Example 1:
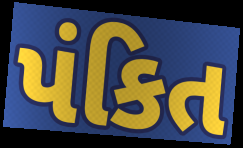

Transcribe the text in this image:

પંકિત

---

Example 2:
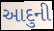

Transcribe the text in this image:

આદુની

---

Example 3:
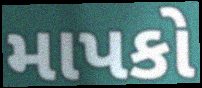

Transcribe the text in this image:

માપકો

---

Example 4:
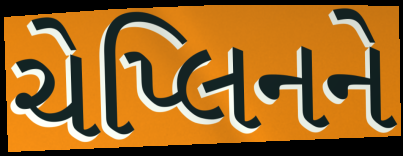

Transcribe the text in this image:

ચેપ્લિનને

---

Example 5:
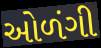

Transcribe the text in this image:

ઓળંગી